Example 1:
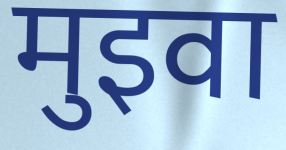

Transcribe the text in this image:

मुइवा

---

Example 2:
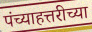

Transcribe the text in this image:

पंच्याहत्तरीच्या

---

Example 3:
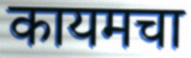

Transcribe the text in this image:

कायमचा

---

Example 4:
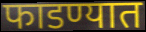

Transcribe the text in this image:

फाडण्यात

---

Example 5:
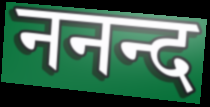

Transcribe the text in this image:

ननन्द